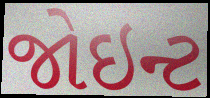
જોઇન્ટ